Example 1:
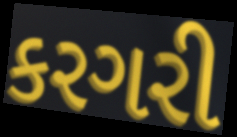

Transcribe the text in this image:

કરગરી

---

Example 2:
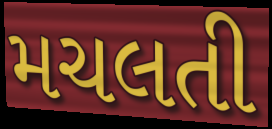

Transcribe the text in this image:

મચલતી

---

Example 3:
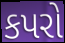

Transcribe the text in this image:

કપરો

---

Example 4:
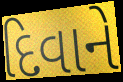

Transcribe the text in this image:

દિવાને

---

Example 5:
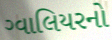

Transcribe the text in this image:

ગ્વાલિયરનો